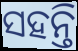
ସହନ୍ତି